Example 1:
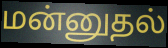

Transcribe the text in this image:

மன்னுதல்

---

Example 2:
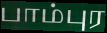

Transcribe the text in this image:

பாம்புர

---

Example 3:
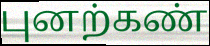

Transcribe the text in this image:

புனற்கண்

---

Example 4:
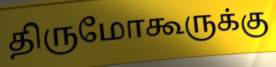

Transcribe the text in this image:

திருமோகூருக்கு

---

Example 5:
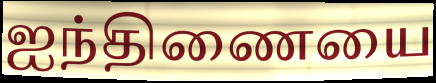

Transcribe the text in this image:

ஐந்திணையை